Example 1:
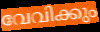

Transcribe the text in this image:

വേവിക്കും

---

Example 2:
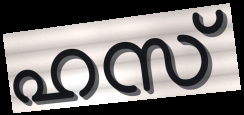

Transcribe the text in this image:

ഹസ്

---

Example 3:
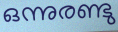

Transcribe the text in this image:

ഒന്നുരണ്ടു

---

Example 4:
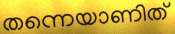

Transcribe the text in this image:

തന്നെയാണിത്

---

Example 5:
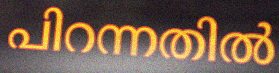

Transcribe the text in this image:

പിറന്നതിൽ